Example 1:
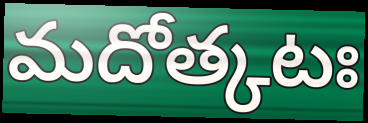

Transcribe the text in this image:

మదోత్కటః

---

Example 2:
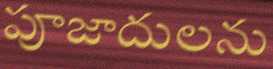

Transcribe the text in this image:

పూజాదులను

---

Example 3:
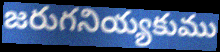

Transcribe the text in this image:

జరుగనియ్యకుము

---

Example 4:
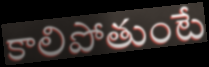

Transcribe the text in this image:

కాలిపోతుంటే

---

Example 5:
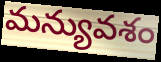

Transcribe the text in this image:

మన్యువశం